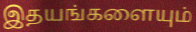
இதயங்களையும்